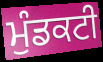
ਮੁੰਡਕਟੀ